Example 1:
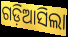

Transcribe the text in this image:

ଗଡ଼ିଆସିଲା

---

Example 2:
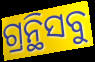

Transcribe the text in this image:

ଗ୍ରନ୍ଥିସବୁ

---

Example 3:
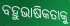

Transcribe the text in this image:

ବହୁଭାଷିକତାକୁ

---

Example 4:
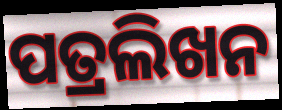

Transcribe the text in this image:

ପତ୍ରଲିଖନ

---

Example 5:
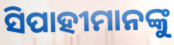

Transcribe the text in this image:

ସିପାହୀମାନଙ୍କୁ